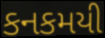
કનકમયી